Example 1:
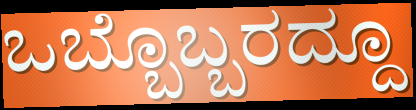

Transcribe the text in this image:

ಒಬ್ಬೊಬ್ಬರದ್ದೂ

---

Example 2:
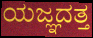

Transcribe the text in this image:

ಯಜ್ಞದತ್ತ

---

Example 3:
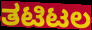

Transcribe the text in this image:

ತಟಿಟಲ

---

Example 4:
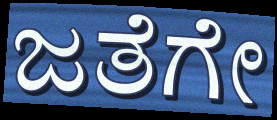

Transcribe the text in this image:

ಜತೆಗೇ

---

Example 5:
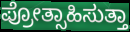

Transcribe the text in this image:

ಪ್ರೋತ್ಸಾಹಿಸುತ್ತಾ